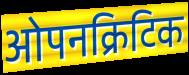
ओपनक्रिटिक